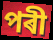
পৰী